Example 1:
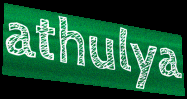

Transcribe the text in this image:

athulya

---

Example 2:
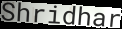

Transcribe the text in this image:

Shridhar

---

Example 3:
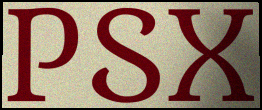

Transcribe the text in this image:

PSX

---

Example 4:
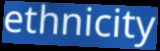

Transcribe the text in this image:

ethnicity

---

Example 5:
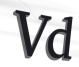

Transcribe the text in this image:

Vd